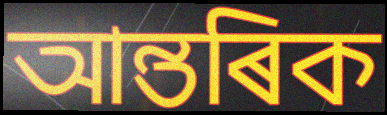
আন্তৰিক